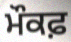
ਮੌਕਫ਼